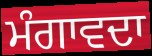
ਮੰਗਾਵਦਾ